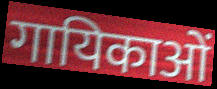
गायिकाओं